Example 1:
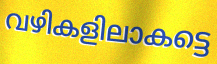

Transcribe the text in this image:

വഴികളിലാകട്ടെ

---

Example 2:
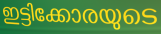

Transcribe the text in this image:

ഇട്ടിക്കോരയുടെ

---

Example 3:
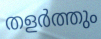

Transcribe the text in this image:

തളർത്തും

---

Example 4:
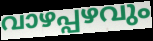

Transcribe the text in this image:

വാഴപ്പഴവും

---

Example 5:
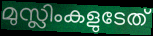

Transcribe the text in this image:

മുസ്ലിംകളുടേത്